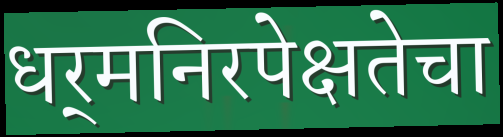
धर्मनिरपेक्षतेचा